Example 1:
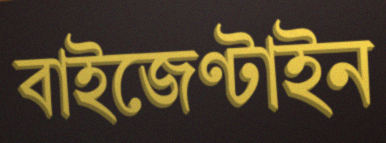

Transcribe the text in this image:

বাইজেণ্টাইন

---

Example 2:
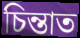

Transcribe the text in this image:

চিন্তাত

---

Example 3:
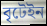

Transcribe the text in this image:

বৃটেইন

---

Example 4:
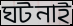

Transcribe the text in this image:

ঘটনাই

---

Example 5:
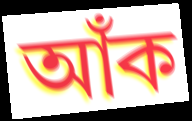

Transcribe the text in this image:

আঁক